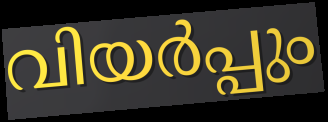
വിയർപ്പും